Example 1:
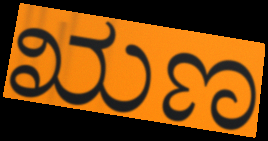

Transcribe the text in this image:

ಋಣ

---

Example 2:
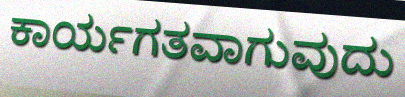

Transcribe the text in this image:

ಕಾರ್ಯಗತವಾಗುವುದು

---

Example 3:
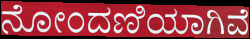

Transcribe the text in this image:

ನೋಂದಣಿಯಾಗಿವೆ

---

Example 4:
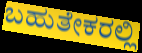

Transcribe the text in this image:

ಬಹುತೇಕರಲ್ಲಿ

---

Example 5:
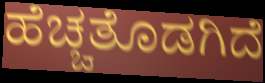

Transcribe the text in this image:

ಹೆಚ್ಚತೊಡಗಿದೆ